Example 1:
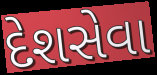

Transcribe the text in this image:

દેશસેવા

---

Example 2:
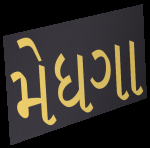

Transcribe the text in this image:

મેધગા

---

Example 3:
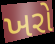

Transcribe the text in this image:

ખરો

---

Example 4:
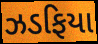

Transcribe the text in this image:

ઝડફિયા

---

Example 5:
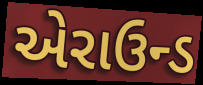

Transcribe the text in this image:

એરાઉન્ડ